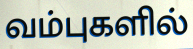
வம்புகளில்